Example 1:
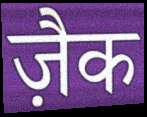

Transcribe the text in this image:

ज़ैक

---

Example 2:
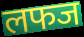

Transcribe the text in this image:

लफज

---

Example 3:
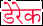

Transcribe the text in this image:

डेरेक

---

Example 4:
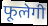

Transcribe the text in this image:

फूलेगी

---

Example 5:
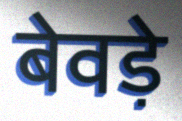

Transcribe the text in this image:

बेवड़े